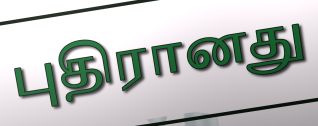
புதிரானது